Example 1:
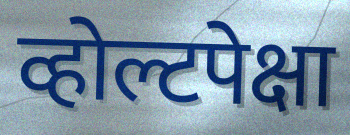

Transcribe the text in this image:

व्होल्टपेक्षा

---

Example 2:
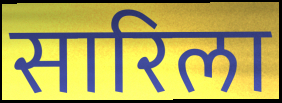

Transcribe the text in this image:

सारिला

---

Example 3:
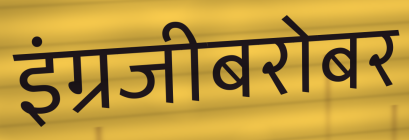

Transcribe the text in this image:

इंग्रजीबरोबर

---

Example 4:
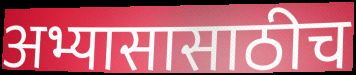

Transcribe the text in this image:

अभ्यासासाठीच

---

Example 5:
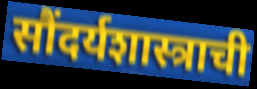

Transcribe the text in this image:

सौंदर्यशास्त्राची